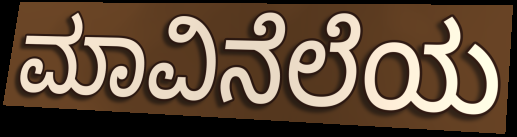
ಮಾವಿನೆಲೆಯ